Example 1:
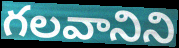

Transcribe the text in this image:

గలవానిని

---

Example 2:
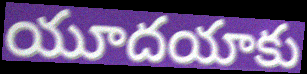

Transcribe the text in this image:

యూదయాకు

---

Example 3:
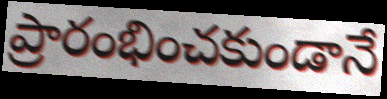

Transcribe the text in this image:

ప్రారంభించకుండానే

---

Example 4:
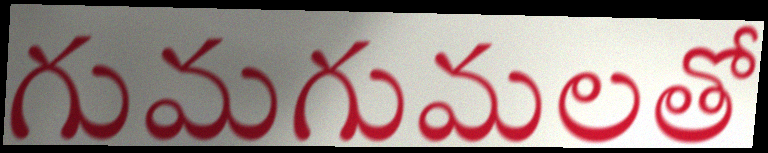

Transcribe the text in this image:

గుమగుమలతో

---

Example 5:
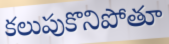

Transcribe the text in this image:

కలుపుకొనిపోతూ